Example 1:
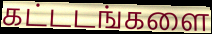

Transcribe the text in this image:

கட்டடங்களை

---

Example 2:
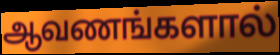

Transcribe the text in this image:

ஆவணங்களால்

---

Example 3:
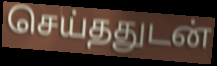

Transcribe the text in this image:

செய்ததுடன்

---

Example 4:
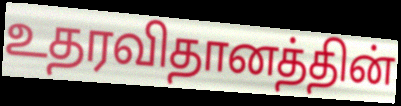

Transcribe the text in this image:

உதரவிதானத்தின்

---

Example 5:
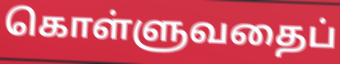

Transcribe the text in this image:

கொள்ளுவதைப்